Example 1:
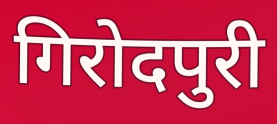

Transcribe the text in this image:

गिरोदपुरी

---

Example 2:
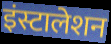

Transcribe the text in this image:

इंस्टालेशन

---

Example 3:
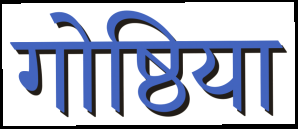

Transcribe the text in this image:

गोष्ठिया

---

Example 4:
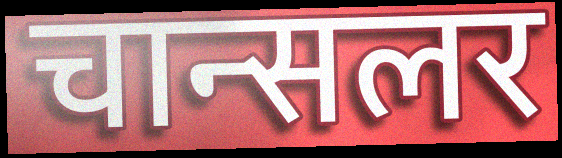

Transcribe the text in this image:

चान्सलर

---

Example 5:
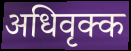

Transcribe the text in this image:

अधिवृक्क